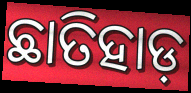
ଛାତିହାଡ଼